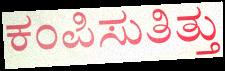
ಕಂಪಿಸುತಿತ್ತು